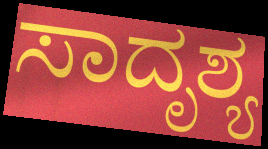
ಸಾದೃಶ್ಯ